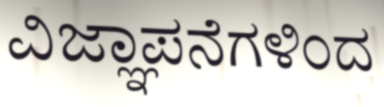
ವಿಜ್ಞಾಪನೆಗಳಿಂದ